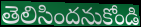
తెలిసిందనుకోండి